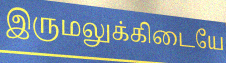
இருமலுக்கிடையே